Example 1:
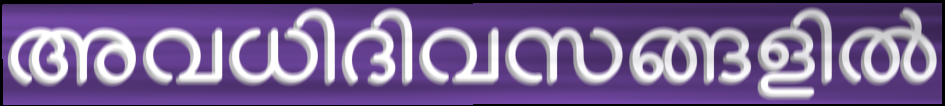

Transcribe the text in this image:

അവധിദിവസങ്ങളിൽ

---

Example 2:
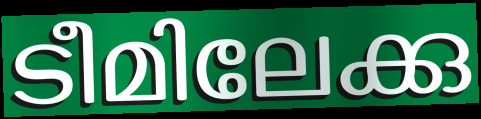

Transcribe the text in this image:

ടീമിലേക്കു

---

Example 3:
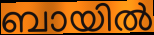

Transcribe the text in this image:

ബായിൽ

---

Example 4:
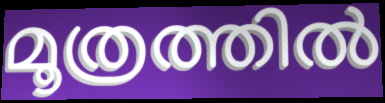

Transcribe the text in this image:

മൂത്രത്തിൽ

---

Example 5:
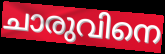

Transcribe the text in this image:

ചാരുവിനെ